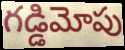
గడ్డిమోపు